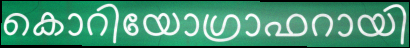
കൊറിയോഗ്രാഫറായി